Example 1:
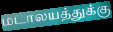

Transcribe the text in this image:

மடாலயத்துக்கு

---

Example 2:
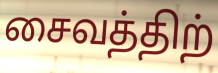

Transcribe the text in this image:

சைவத்திற்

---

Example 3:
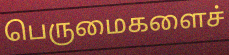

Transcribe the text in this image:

பெருமைகளைச்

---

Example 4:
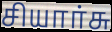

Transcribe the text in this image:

சியார்சு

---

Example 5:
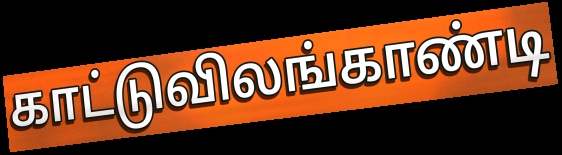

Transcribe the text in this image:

காட்டுவிலங்காண்டி